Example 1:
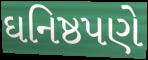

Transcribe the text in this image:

ઘનિષ્ઠપણે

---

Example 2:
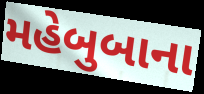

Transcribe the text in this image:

મહેબુબાના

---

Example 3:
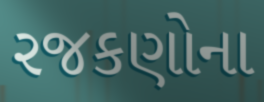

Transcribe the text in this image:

રજકણોના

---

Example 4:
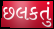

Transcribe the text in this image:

છલકતું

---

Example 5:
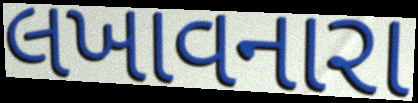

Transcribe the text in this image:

લખાવનારા